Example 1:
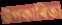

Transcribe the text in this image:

উপকাৰিতা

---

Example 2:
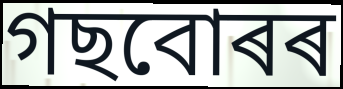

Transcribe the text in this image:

গছবোৰৰ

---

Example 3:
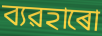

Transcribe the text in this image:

ব্যৱহাৰো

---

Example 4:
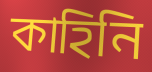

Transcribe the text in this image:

কাহিনি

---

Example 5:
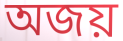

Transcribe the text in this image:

অজয়